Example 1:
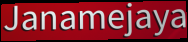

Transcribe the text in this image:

Janamejaya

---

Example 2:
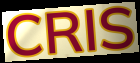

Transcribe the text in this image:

CRIS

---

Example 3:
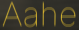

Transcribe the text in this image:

Aahe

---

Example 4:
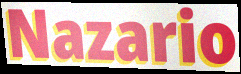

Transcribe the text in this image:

Nazario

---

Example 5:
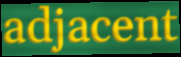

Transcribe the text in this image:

adjacent